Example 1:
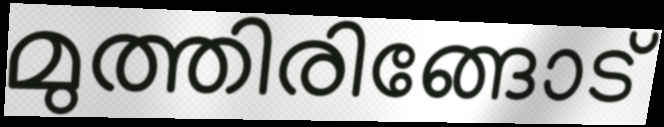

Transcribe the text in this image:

മുത്തിരിങ്ങോട്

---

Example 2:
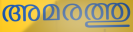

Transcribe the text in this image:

അമരത്തു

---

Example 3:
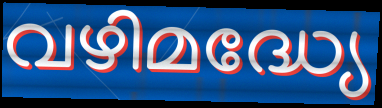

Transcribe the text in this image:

വഴിമദ്ധ്യേ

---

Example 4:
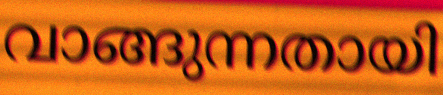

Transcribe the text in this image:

വാങ്ങുന്നതായി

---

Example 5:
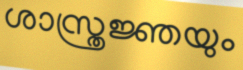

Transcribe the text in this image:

ശാസ്ത്രജ്ഞയും